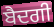
ਬੈਦਗੀ